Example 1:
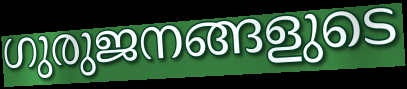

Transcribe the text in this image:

ഗുരുജനങ്ങളുടെ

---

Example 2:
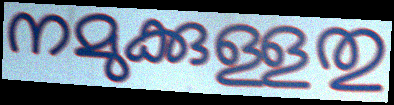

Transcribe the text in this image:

നമുക്കുള്ളതു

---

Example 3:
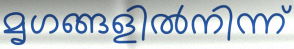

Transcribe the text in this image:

മൃഗങ്ങളിൽനിന്ന്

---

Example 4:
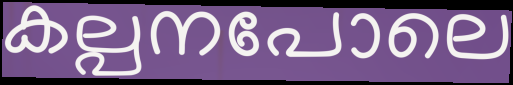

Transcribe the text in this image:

കല്പനപോലെ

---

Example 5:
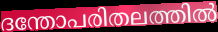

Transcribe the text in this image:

ദന്തോപരിതലത്തിൽ